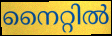
നൈറ്റിൽ